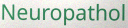
Neuropathol